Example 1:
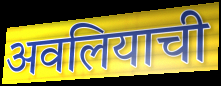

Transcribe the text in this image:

अवलियाची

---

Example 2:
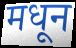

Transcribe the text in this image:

मधून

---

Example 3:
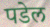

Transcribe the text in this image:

पडेल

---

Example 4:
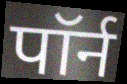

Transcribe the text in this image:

पॉर्न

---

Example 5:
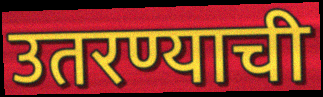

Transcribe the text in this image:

उतरण्याची